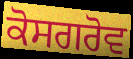
ਕੋਸਗਰੋਵ